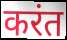
करंत